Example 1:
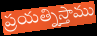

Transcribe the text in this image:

ప్రయత్నిస్తాము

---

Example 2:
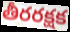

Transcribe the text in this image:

తీరరక్షక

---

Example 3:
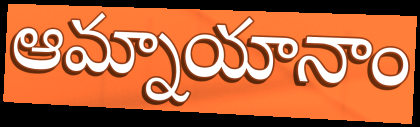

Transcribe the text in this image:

ఆమ్నాయానాం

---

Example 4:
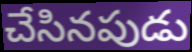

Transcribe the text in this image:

చేసినపుడు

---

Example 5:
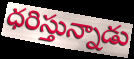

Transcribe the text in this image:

ధరిస్తున్నాడు